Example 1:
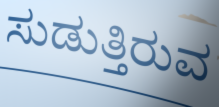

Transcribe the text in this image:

ಸುಡುತ್ತಿರುವ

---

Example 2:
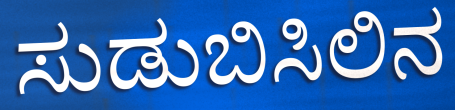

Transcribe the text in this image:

ಸುಡುಬಿಸಿಲಿನ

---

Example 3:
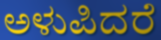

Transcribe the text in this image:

ಅಳುಪಿದರೆ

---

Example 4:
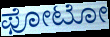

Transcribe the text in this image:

ಫೋಟೋ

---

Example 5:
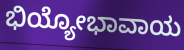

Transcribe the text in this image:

ಭಿಯ್ಯೋಭಾವಾಯ